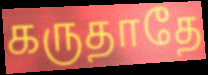
கருதாதே